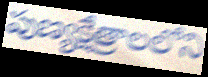
పుణ్యక్షేత్రాలలోని